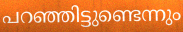
പറഞ്ഞിട്ടുണ്ടെന്നും